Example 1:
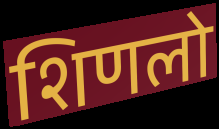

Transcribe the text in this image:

शिणलो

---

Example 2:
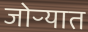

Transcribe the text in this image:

जोऱ्यात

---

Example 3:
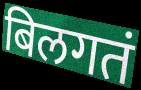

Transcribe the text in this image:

बिलगतं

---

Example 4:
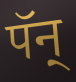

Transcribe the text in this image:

पॅन्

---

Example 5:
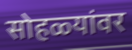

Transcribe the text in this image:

सोहळ्यांवर